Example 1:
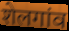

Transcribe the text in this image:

शेलगांव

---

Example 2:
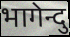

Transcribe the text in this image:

भागेन्दु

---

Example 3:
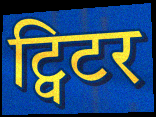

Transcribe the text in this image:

ट्विटर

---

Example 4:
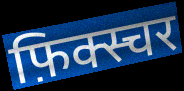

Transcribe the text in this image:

फ़िक्स्चर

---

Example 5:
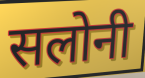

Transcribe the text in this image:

सलोनी